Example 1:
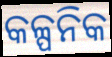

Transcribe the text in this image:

କଳ୍ପନିକ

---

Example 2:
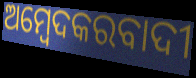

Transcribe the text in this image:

ଅମ୍ବେଦକରବାଦୀ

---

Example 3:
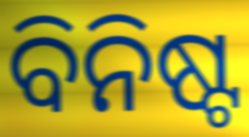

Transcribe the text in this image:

ବିନିଷ୍ଟ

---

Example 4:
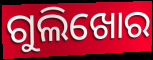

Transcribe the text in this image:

ଗୁଲିଖୋର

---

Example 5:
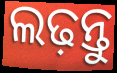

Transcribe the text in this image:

ଲଢ଼ନ୍ତୁ